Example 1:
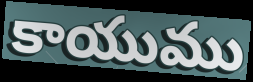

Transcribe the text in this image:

కాయుము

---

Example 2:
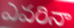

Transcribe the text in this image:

ఎవరినా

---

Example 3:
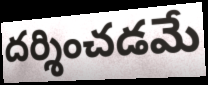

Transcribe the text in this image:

దర్శించడమే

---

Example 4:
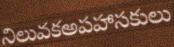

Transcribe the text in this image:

నిలువకఅపహాసకులు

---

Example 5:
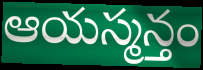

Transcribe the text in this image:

ఆయస్మన్తం